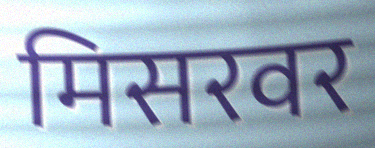
मिसरवर